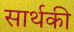
सार्थकी